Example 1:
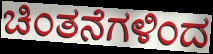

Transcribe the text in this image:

ಚಿಂತನೆಗಳಿಂದ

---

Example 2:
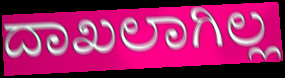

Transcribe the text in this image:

ದಾಖಲಾಗಿಲ್ಲ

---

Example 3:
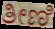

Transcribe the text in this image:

ತೀಣಿ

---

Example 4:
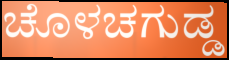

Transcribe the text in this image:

ಚೊಳಚಗುಡ್ಡ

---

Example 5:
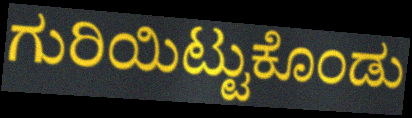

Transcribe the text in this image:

ಗುರಿಯಿಟ್ಟುಕೊಂಡು